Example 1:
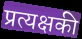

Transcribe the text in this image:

प्रत्यक्षकी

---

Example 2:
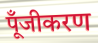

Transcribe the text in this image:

पूँजीकरण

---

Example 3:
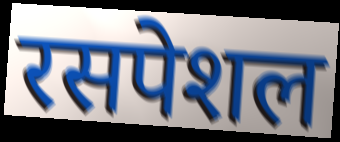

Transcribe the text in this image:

रसपेशल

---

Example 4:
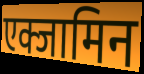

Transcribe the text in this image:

एक्जामिन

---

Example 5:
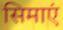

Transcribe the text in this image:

सिमाएं